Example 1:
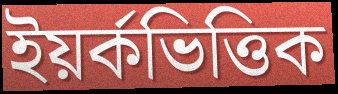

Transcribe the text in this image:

ইয়র্কভিত্তিক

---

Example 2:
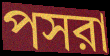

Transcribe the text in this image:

পসরা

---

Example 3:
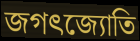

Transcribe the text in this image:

জগৎজ্যোতি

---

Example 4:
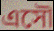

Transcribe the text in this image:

এসৌ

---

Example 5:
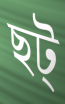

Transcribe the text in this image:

ছট্